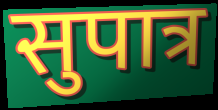
सुपात्र